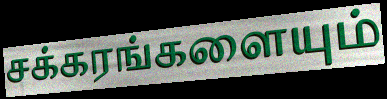
சக்கரங்களையும்